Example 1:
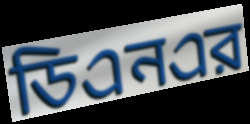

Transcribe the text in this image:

ডিএনএর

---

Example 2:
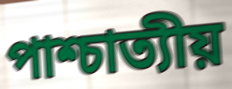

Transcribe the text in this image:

পাশ্চাত্যীয়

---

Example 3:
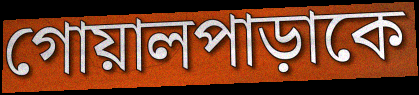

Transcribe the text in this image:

গোয়ালপাড়াকে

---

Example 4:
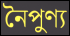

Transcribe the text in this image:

নৈপুণ্য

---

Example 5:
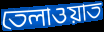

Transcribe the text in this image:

তেলাওয়াত